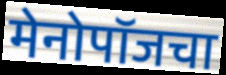
मेनोपॉजचा